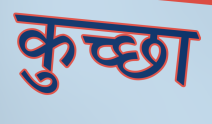
कुच्छा